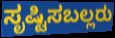
ಸೃಷ್ಟಿಸಬಲ್ಲರು